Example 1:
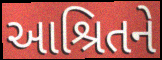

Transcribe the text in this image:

આશ્રિતને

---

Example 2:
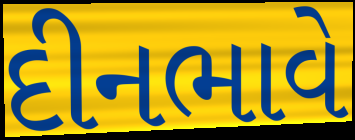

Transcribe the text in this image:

દીનભાવે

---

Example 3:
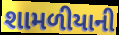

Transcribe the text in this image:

શામળીયાની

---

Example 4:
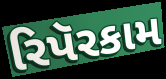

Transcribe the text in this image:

રિપૅરકામ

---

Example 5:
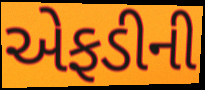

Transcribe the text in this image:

એફડીની